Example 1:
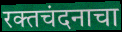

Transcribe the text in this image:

रक्तचंदनाचा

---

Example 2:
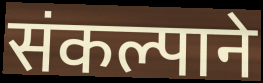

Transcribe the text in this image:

संकल्पाने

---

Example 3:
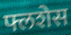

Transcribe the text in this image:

फ्लशेस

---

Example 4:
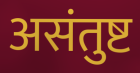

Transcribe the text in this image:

असंतुष्ट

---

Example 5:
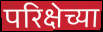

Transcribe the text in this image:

परिक्षेच्या